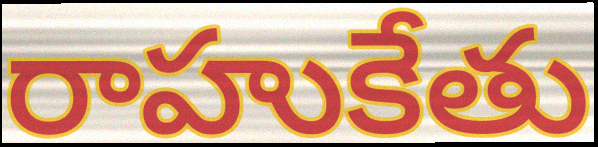
రాహుకేతు